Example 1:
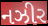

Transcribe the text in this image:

નઝીર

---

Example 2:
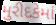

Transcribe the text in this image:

મુરીદકેમાં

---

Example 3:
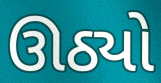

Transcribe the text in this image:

ઊઠ્યો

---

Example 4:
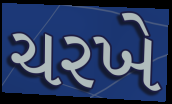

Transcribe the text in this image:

ચરખે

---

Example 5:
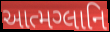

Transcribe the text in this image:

આત્મગ્લાનિ